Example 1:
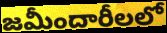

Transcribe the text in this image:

జమీందారీలలో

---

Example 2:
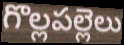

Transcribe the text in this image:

గొల్లపల్లెలు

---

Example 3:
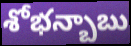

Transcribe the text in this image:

శోభన్బాబు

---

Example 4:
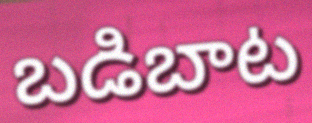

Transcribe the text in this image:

బడిబాట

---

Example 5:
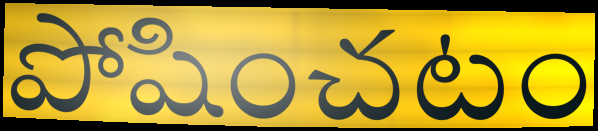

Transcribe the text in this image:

పోషించటం